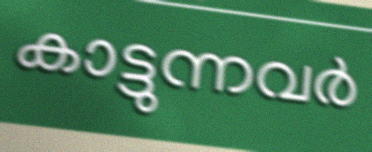
കാട്ടുന്നവർ